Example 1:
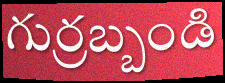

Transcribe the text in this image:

గుర్రబ్బండి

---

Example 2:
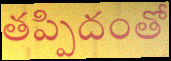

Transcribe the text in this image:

తప్పిదంతో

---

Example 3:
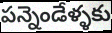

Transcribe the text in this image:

పన్నెండేళ్ళకు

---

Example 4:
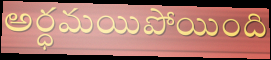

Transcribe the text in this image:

అర్ధమయిపోయింది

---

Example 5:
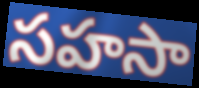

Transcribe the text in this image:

సహసా